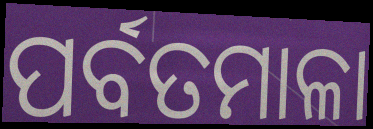
ପର୍ବତମାଳା